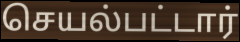
செயல்பட்டார்